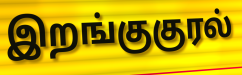
இறங்குகுரல்